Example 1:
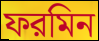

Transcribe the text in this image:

ফরমিন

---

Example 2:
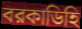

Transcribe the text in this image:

বরকাডিহি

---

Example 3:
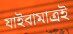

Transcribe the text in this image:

যাইবামাত্রই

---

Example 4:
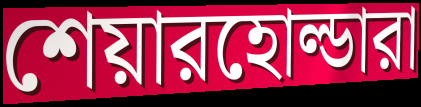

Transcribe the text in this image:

শেয়ারহোল্ডারা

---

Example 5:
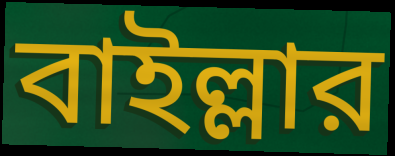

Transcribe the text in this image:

বাইল্লার